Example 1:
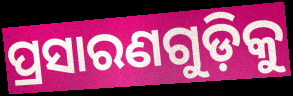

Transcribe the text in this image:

ପ୍ରସାରଣଗୁଡ଼ିକୁ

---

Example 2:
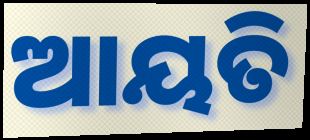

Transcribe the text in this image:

ଆୟତି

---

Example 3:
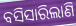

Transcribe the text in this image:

ବସିସାରିଲାଣି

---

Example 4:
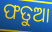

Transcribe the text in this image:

ଫତୁଆ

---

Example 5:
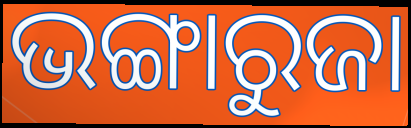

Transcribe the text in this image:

ଭଙ୍ଗାରୁଜା